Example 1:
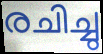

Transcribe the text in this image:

രചിച്ചു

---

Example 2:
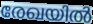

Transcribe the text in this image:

രേഖയിൽ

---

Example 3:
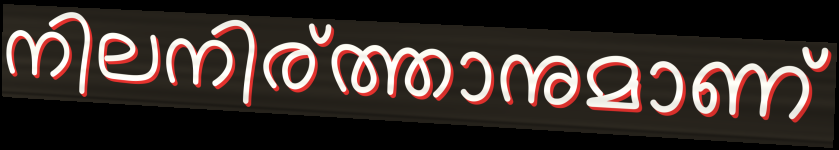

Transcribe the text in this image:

നിലനിര്ത്താനുമാണ്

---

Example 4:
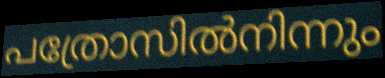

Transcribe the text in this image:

പത്രോസിൽനിന്നും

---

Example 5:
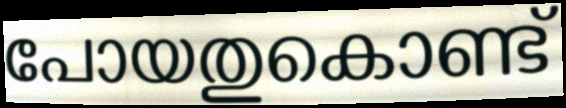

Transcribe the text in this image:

പോയതുകൊണ്ട്